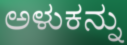
ಅಳುಕನ್ನು